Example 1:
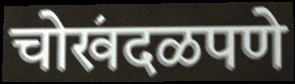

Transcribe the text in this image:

चोखंदळपणे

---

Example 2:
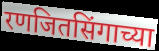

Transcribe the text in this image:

रणजितसिंगाच्या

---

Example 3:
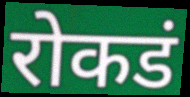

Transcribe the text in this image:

रोकडं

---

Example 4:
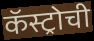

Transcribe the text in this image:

कॅस्ट्रोची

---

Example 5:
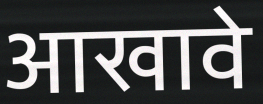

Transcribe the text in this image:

आखावे